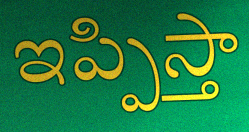
ఇప్పిస్తా